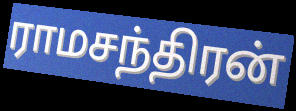
ராமசந்திரன்